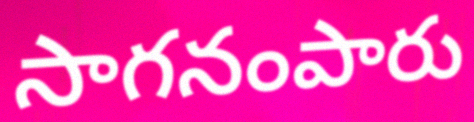
సాగనంపారు